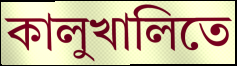
কালুখালিতে